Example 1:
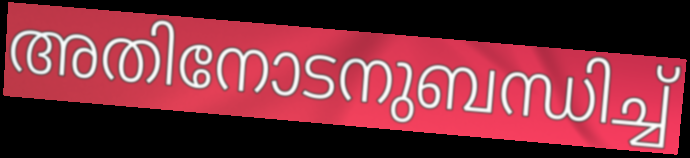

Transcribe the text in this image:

അതിനോടനുബന്ധിച്ച്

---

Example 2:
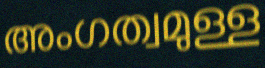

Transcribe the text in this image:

അംഗത്വമുള്ള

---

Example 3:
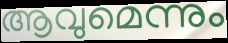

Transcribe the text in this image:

ആവുമെന്നും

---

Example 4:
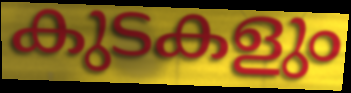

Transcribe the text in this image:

കുടകളും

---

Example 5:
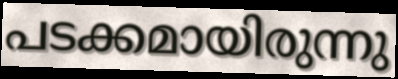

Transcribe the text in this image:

പടക്കമായിരുന്നു